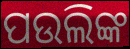
ପଉଲିଙ୍କ